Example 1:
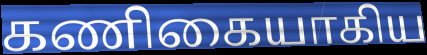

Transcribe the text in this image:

கணிகையாகிய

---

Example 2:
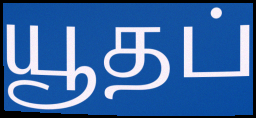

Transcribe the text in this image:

யூதப்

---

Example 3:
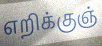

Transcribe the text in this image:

எறிக்குஞ்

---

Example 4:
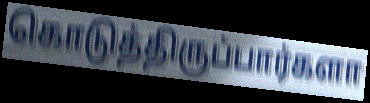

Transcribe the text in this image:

கொடுத்திருப்பார்களா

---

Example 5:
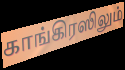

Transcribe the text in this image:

காங்கிரஸிலும்